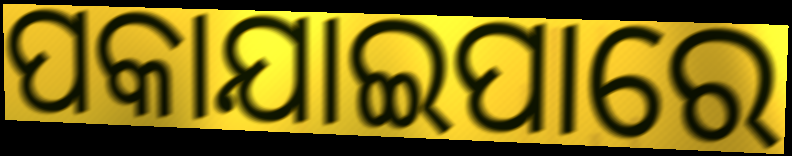
ପକାଯାଇପାରେ